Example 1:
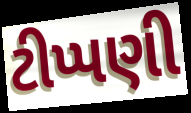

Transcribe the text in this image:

ટીપ્પણી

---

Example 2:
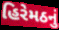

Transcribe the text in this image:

હિરેમઠનું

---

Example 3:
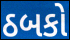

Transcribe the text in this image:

ઠબકો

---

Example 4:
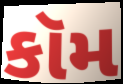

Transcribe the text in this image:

કૉમ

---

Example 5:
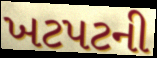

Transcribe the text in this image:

ખટપટની